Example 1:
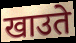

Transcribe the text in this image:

खाउते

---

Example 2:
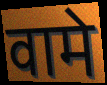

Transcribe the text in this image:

वामे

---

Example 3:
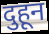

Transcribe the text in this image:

दुहून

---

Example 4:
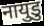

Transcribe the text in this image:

नायुडु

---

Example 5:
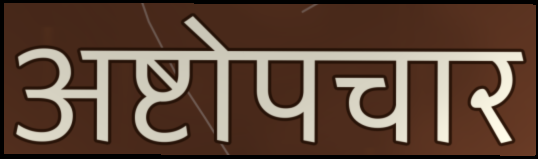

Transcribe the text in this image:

अष्टोपचार